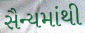
સૈન્યમાંથી